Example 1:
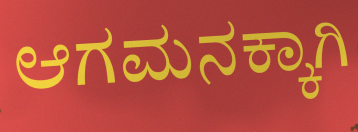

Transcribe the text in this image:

ಆಗಮನಕ್ಕಾಗಿ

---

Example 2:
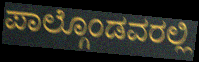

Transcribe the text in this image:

ಪಾಲ್ಗೊಂಡವರಲ್ಲಿ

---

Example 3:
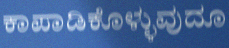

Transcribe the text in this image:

ಕಾಪಾಡಿಕೊಳ್ಳುವುದೂ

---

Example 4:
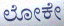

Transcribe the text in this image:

ಲೋಕೇ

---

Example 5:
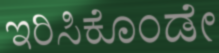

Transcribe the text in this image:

ಇರಿಸಿಕೊಂಡೇ